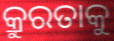
କ୍ରୁରତାକୁ